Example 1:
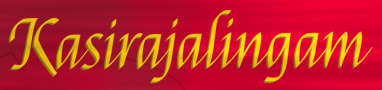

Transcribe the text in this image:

Kasirajalingam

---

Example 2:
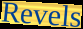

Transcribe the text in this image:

Revels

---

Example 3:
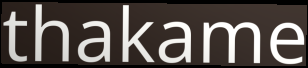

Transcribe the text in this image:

thakame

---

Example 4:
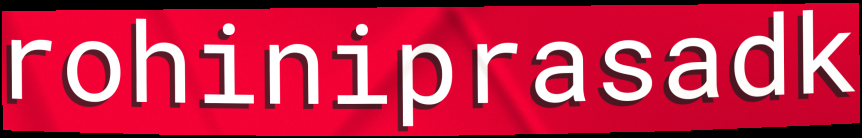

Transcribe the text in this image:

rohiniprasadk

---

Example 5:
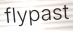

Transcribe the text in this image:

flypast